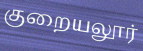
குறையலூர்